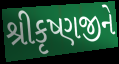
શ્રીકૃષ્ણજીને